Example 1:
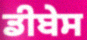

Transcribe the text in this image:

ਡੀਬੇਸ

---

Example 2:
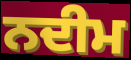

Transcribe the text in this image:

ਨਦੀਮ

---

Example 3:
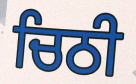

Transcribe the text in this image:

ਚਿਠੀ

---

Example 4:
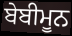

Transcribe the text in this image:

ਬੇਬੀਮੂਨ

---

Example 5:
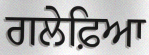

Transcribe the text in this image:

ਗਲੇਫ਼ਿਆ